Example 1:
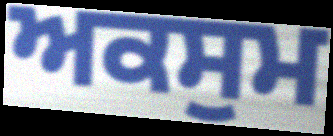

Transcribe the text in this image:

ਅਕਸੁਮ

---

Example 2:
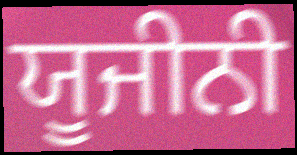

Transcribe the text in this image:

ਯੂਜੀਨੀ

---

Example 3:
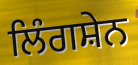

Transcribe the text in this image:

ਲਿੰਗਸ਼ੇਨ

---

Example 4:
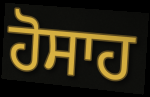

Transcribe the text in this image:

ਹੋਸਾਹ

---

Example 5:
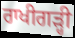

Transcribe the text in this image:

ਰਾਖੀਗੜ੍ਹੀ